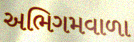
અભિગમવાળા